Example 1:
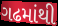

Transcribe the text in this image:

ગઢમાંથી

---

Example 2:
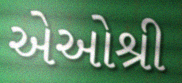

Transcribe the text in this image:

એઓશ્રી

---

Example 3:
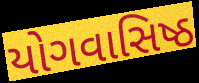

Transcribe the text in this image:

યોગવાસિષ્ઠ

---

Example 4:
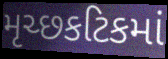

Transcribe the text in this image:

મૃચ્છકટિકમાં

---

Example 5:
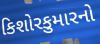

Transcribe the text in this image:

કિશોરકુમારનો